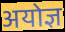
अयोज्ञ